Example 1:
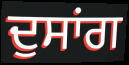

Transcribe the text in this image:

ਦੁਸਾਂਗ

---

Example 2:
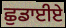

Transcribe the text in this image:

ਛੁਡਾਈਏ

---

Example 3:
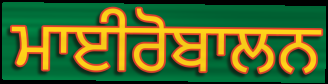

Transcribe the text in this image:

ਮਾਈਰੋਬਾਲਨ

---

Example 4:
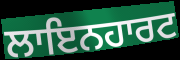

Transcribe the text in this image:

ਲਾਇਨਹਾਰਟ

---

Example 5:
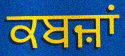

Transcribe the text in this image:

ਕਬਜ਼ਾਂ